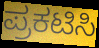
ಪ್ರಕಟಿಸಿ